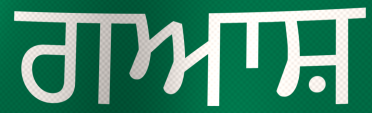
ਗਆਸ਼